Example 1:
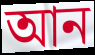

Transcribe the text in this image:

আন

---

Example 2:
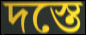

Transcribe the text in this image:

দস্তে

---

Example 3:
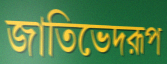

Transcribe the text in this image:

জাতিভেদরূপ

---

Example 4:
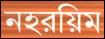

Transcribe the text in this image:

নহরয়িম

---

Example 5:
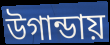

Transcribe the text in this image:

উগান্ডায়